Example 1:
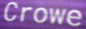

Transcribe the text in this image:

Crowe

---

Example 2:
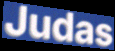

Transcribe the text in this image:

Judas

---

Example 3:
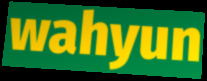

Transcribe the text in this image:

wahyun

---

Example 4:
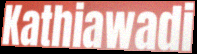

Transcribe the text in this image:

Kathiawadi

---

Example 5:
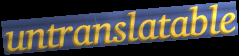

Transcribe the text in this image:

untranslatable